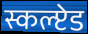
स्कल्प्टेड